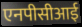
एनपीसीआई